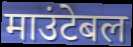
माउंटेबल